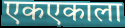
एकएकाला